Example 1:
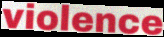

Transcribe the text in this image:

violence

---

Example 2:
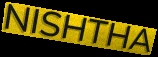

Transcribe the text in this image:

NISHTHA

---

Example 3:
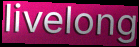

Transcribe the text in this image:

livelong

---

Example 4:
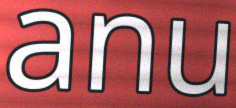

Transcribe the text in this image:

anu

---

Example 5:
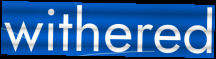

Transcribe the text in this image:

withered